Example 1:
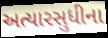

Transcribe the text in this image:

અત્યારસુધીના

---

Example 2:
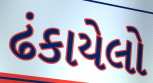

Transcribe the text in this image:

ઢંકાયેલો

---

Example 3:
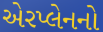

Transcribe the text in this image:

એરપ્લેનનો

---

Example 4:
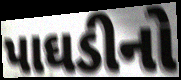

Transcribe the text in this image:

પાઘડીનો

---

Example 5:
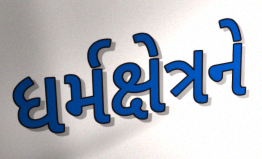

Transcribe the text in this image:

ધર્મક્ષેત્રને